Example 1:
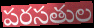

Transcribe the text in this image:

పరసతుల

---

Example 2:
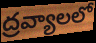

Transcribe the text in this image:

ద్రవ్యాలలో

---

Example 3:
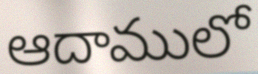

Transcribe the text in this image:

ఆదాములో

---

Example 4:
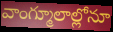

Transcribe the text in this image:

వాంగ్మూలాల్లోనూ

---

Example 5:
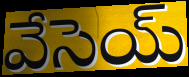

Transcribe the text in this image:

వేసెయ్